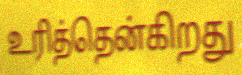
உரித்தென்கிறது